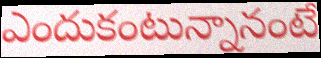
ఎందుకంటున్నానంటే